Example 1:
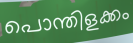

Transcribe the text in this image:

പൊന്തിളക്കം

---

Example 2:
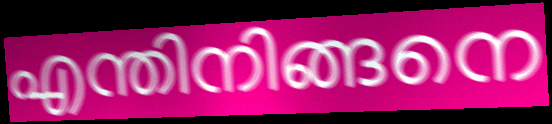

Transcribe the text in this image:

എന്തിനിങ്ങനെ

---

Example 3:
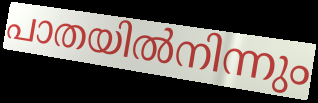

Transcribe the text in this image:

പാതയിൽനിന്നും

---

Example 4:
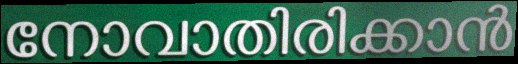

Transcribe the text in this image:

നോവാതിരിക്കാൻ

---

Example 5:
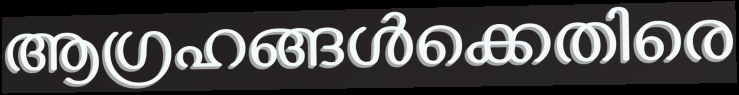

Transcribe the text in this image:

ആഗ്രഹങ്ങൾക്കെതിരെ